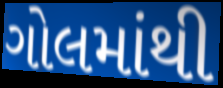
ગોલમાંથી